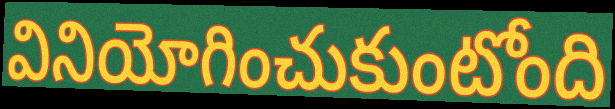
వినియోగించుకుంటోంది